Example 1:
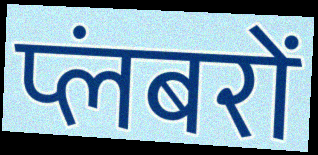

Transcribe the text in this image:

प्लंबरों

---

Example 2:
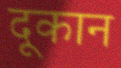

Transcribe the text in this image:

दूकान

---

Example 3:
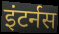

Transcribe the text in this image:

इंटर्नस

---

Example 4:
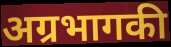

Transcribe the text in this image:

अग्रभागकी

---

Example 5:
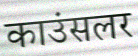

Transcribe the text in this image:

काउंसलर